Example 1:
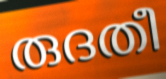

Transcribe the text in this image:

രുദതീ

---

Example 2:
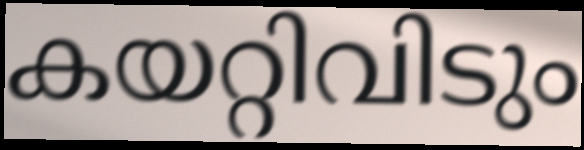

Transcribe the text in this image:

കയറ്റിവിടും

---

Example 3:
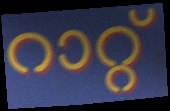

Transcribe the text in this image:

റാറ്റ്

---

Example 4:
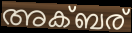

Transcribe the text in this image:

അക്ബര്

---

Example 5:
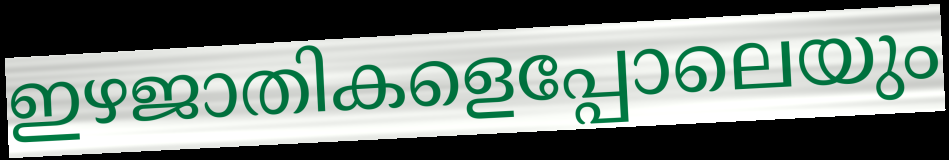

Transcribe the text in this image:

ഇഴജാതികളെപ്പോലെയും